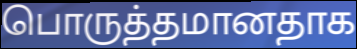
பொருத்தமானதாக